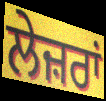
ਲੇਜ਼ਰਾਂ